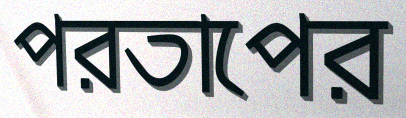
পরতাপের